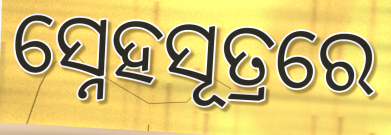
ସ୍ନେହସୂତ୍ରରେ